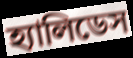
হ্যালিডেস